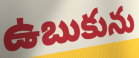
ఉబుకును